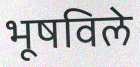
भूषविले